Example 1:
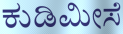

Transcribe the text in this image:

ಕುಡಿಮೀಸೆ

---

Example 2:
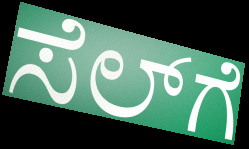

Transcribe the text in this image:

ಸೆಲ್‍ಗೆ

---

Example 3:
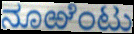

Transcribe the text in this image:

ನೂಱೆಂಟು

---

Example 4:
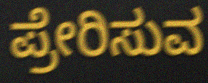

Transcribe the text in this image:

ಪ್ರೇರಿಸುವ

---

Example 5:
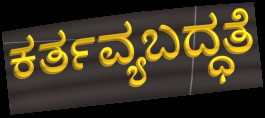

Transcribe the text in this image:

ಕರ್ತವ್ಯಬದ್ಧತೆ